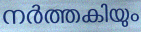
നർത്തകിയും